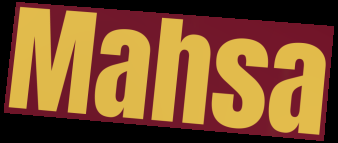
Mahsa